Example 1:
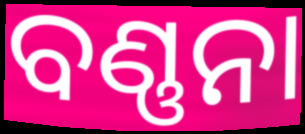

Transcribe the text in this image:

ବଣ୍ଣନା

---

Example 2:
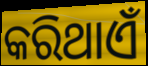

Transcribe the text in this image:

କରିଥାଏଁ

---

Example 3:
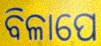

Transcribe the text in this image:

ବିଳାପେ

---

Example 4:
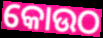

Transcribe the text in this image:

କୋଉଠ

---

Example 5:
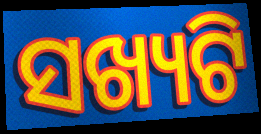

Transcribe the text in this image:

ସଖ୍ୟଟି